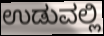
ಉಡುವಲ್ಲಿ